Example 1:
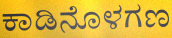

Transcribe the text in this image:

ಕಾಡಿನೊಳಗಣ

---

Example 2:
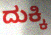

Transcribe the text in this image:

ದುಕ್ಕಿ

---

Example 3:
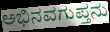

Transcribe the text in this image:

ಅಭಿನವಗುಪ್ತನು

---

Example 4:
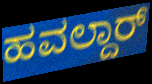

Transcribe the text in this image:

ಹವಲ್ದಾರ್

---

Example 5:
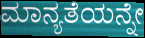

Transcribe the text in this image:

ಮಾನ್ಯತೆಯನ್ನೇ